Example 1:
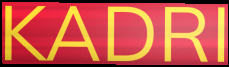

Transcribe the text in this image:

KADRI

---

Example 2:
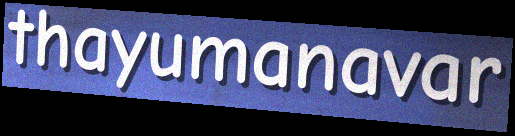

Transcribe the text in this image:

thayumanavar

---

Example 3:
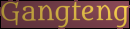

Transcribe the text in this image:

Gangteng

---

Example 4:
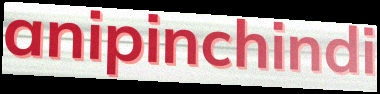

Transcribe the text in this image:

anipinchindi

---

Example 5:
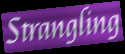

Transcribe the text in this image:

Strangling